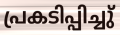
പ്രകടിപ്പിച്ചു്